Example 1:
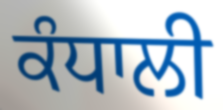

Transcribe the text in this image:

ਕੰਧਾਲੀ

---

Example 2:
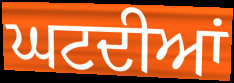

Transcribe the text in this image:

ਘਟਦੀਆਂ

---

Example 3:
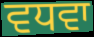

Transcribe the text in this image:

ਵਧਵਾ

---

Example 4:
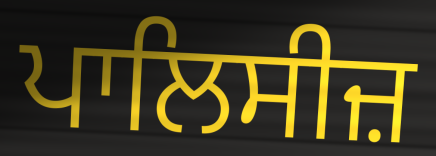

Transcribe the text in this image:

ਪਾਲਿਸੀਜ਼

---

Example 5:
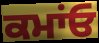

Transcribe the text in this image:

ਕਮਾਂਓ